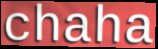
chaha